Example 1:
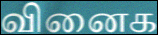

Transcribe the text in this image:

வினைக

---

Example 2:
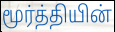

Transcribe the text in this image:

மூர்த்தியின்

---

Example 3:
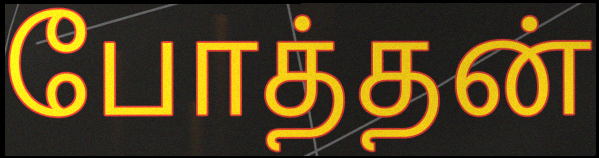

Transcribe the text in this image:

போத்தன்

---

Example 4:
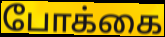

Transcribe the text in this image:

போக்கை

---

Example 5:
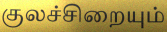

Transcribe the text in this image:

குலச்சிறையும்